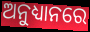
ଅନୁଧ୍ୟାନରେ